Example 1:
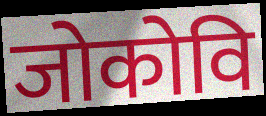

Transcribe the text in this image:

जोकोवि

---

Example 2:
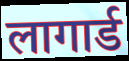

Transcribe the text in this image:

लागार्ड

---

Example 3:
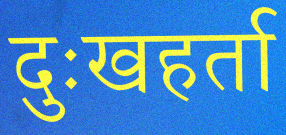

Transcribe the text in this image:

दुःखहर्ता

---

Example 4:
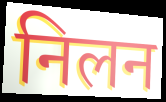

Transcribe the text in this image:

निलन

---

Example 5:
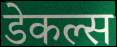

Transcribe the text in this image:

डेकल्स